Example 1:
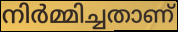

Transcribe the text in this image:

നിർമ്മിച്ചതാണ്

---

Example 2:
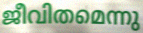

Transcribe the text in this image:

ജീവിതമെന്നു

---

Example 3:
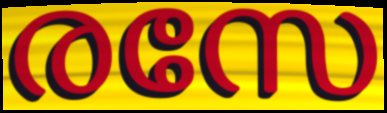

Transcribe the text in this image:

രസേ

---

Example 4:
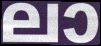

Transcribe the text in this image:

ലാ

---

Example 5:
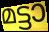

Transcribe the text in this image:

മട്ടാ